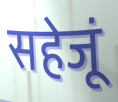
सहेजूं